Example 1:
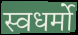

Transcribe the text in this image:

स्वधर्मो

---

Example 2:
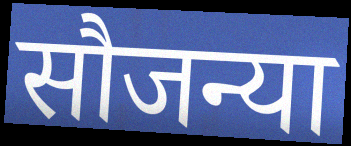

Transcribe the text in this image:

सौजन्या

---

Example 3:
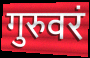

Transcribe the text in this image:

गुरुवरं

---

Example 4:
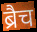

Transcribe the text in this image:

ब्रैच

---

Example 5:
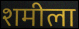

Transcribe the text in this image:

शमीला